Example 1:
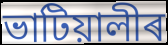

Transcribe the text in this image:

ভাটিয়ালীৰ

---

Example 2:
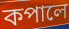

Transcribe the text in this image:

কপালে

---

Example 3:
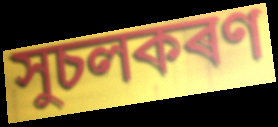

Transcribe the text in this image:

সুচলকৰণ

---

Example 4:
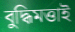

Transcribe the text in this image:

বুদ্ধিমত্তাই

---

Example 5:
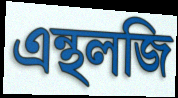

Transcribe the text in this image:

এন্থলজি